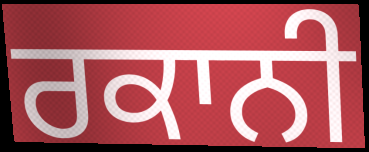
ਰਕਾਨੀ